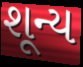
શૂન્ય